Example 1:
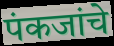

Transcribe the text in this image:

पंकजांचे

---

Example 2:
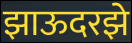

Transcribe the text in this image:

झाऊदरझे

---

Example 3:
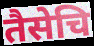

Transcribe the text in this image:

तैसेचि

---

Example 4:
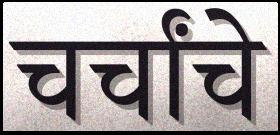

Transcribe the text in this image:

चर्चांचे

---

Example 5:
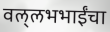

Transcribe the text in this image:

वल्लभभाईंचा